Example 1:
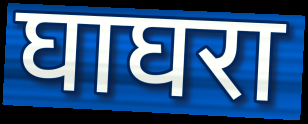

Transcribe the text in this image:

घाघरा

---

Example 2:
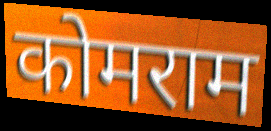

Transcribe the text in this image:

कोमराम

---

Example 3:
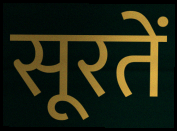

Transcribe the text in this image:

सूरतें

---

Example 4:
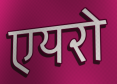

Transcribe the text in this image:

एयरो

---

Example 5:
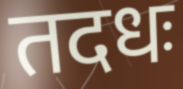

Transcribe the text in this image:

तदधः